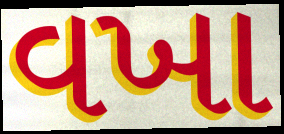
વખા